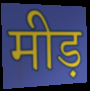
मीड़